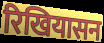
रिखियासन